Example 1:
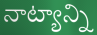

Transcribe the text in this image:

నాట్యాన్ని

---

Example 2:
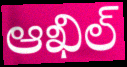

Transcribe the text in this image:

ఆఖిల్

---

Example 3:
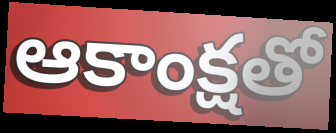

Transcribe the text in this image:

ఆకాంక్షతో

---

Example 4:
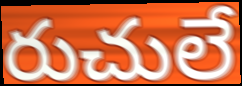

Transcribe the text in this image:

రుచులే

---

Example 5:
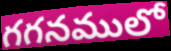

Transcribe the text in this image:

గగనములో